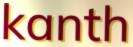
kanth